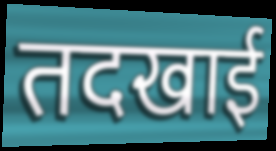
तदखाई